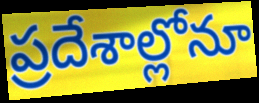
ప్రదేశాల్లోనూ